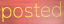
posted